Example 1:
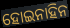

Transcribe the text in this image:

ହୋଇନାହିନ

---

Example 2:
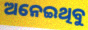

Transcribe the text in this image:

ଅନେଇଥିବୁ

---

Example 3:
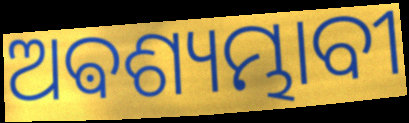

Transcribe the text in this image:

ଅଵଶ୍ୟମ୍ଭାବୀ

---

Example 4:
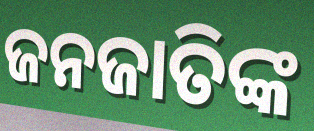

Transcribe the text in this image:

ଜନଜାତିଙ୍କ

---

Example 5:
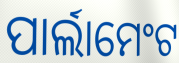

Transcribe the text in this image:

ପାର୍ଲାମେଂଟ